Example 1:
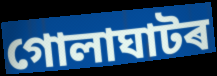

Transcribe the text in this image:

গোলাঘাটৰ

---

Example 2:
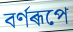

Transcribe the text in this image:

বৰ্ণৰূপে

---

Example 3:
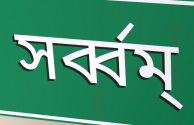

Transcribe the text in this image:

সৰ্ব্বম্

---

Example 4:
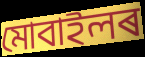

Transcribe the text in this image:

মোবাইলৰ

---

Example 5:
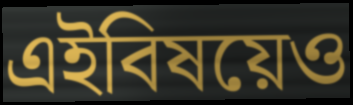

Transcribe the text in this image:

এইবিষয়েও